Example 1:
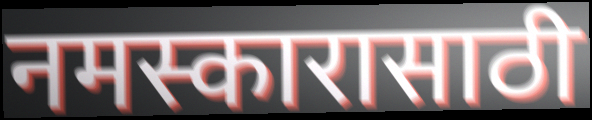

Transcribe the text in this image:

नमस्कारासाठी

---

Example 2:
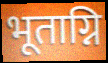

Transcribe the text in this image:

भूताग्नि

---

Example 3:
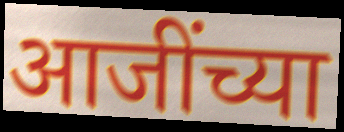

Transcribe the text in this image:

आजींच्या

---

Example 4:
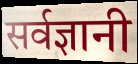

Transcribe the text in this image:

सर्वज्ञानी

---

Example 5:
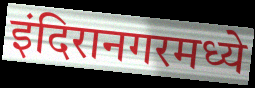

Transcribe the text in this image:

इंदिरानगरमध्ये